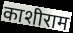
काशीराम